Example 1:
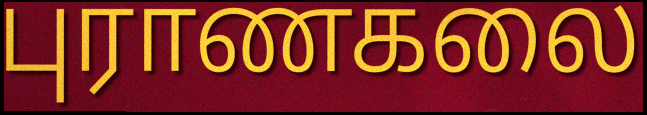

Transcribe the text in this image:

புராணகலை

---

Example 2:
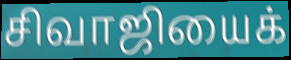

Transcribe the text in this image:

சிவாஜியைக்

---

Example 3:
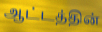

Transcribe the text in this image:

ஆட்டத்தின்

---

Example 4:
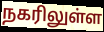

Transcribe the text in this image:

நகரிலுள்ள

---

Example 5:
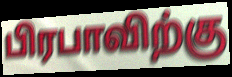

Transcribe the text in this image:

பிரபாவிற்கு